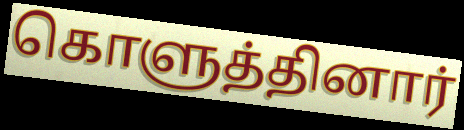
கொளுத்தினார்